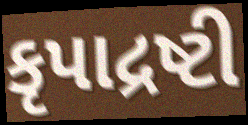
કૃપાદ્રષ્ટી